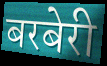
बरबेरी